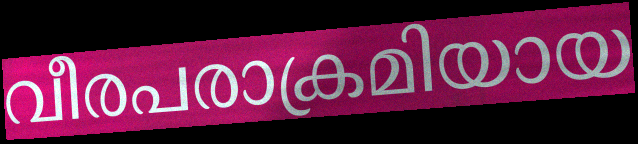
വീരപരാക്രമിയായ